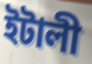
ইটালী